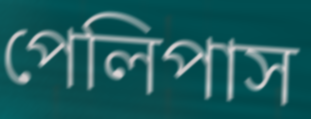
পেলিপাস